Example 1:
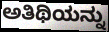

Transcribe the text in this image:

ಅತಿಥಿಯನ್ನು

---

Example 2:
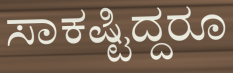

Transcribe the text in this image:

ಸಾಕಷ್ಟಿದ್ದರೂ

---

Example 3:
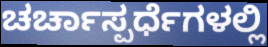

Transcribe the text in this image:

ಚರ್ಚಾಸ್ಪರ್ಧೆಗಳಲ್ಲಿ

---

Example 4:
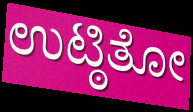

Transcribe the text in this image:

ಉಟ್ಠಿತೋ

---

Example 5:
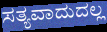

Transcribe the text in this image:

ಸತ್ಯವಾದುದಲ್ಲ